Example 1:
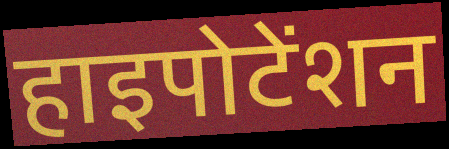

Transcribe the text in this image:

हाइपोटेंशन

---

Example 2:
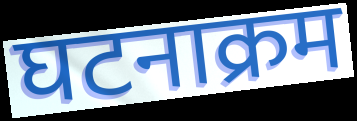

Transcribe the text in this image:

घटनाक्रम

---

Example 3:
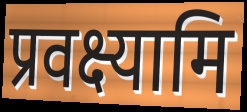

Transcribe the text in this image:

प्रवक्ष्यामि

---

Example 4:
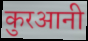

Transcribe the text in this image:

कुरआनी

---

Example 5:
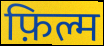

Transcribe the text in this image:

फ़िल्म